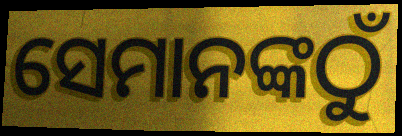
ସେମାନଙ୍କଠୁଁ